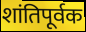
शांतिपूर्वक